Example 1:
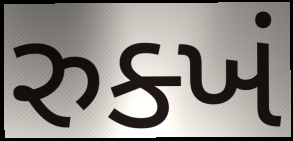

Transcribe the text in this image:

રુક્ખં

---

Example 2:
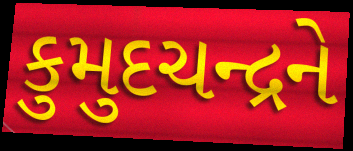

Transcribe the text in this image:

કુમુદચન્દ્રને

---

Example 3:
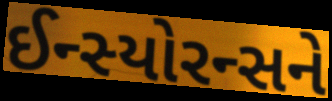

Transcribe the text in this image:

ઈન્સ્યોરન્સને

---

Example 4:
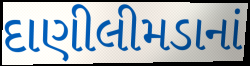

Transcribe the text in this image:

દાણીલીમડાનાં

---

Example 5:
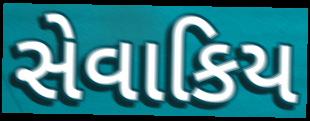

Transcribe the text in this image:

સેવાકિય